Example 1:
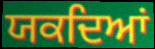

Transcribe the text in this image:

ਯਕਦਿਆਂ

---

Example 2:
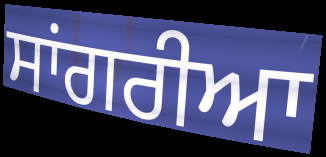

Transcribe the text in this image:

ਸਾਂਗਰੀਆ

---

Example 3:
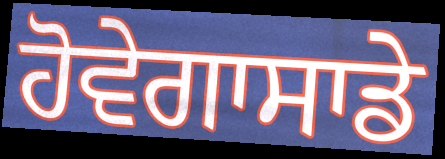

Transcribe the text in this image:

ਹੋਵੇਗਾਸਾਡੇ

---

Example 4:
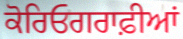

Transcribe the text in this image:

ਕੋਰਿਓਗਰਾਫ਼ੀਆਂ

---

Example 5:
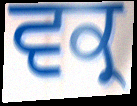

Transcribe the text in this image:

ਵਕ੍ਰ